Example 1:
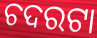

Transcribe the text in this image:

ଚଦରଟା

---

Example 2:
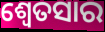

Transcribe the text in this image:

ଶ୍ଵେତସାର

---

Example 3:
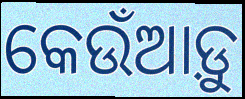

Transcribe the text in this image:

କେଉଁଆଡ଼ୁ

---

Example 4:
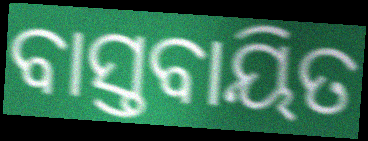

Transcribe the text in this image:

ବାସ୍ତବାୟିତ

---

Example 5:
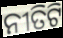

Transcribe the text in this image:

ନୀତିଟି